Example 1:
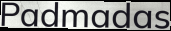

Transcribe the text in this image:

Padmadas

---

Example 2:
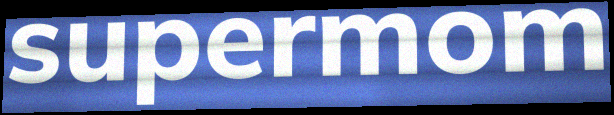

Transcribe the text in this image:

supermom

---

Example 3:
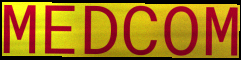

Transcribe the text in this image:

MEDCOM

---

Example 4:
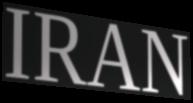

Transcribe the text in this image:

IRAN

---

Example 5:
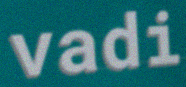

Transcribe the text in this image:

vadi